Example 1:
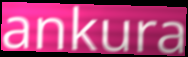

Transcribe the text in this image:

ankura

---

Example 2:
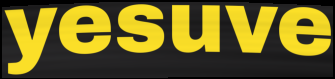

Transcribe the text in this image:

yesuve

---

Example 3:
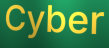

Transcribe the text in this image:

Cyber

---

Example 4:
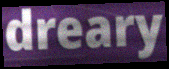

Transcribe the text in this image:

dreary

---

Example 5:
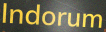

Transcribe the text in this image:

Indorum